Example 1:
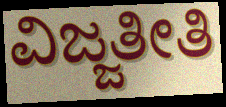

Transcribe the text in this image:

ವಿಜ್ಜತೀತಿ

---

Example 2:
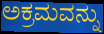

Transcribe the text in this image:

ಅಕ್ರಮವನ್ನು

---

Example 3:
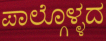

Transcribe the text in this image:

ಪಾಲ್ಗೊಳ್ಳದ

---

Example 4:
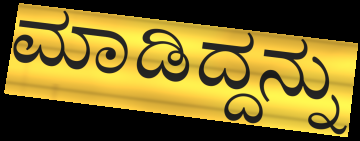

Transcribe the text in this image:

ಮಾಡಿದ್ದನ್ನು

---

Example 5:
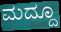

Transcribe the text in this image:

ಮದ್ದೂ